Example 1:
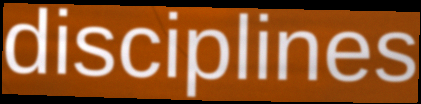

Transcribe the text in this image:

disciplines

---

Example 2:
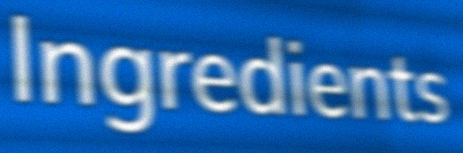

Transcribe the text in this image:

Ingredients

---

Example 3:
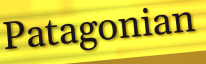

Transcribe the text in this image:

Patagonian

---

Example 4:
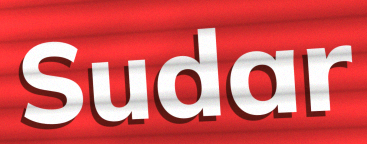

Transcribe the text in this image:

Sudar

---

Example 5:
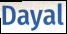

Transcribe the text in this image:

Dayal